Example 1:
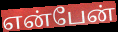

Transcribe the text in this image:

என்பேன்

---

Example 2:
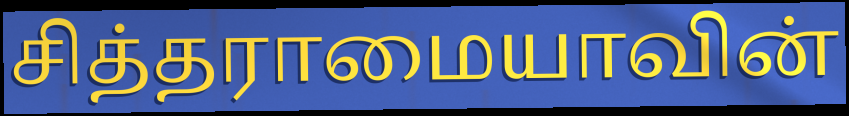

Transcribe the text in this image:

சித்தராமையாவின்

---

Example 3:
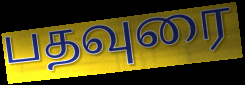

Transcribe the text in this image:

பதவுரை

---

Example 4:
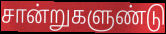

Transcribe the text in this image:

சான்றுகளுண்டு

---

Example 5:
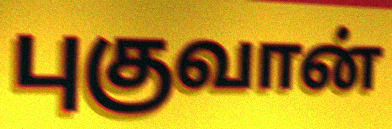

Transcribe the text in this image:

புகுவான்